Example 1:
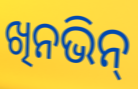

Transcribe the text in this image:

ଖିନଭିନ୍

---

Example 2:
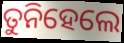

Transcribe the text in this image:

ତୁନିହେଲେ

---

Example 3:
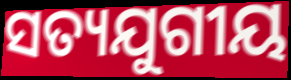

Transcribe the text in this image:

ସତ୍ୟଯୁଗୀୟ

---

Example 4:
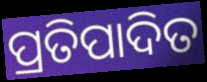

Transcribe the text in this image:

ପ୍ରତିପାଦିତ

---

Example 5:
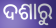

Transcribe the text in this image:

ଦଶାରୁ